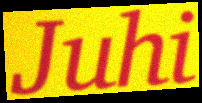
Juhi